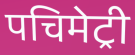
पचिमेट्री